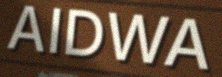
AIDWA